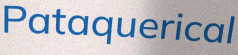
Pataquerical